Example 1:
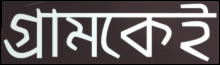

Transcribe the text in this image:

গ্রামকেই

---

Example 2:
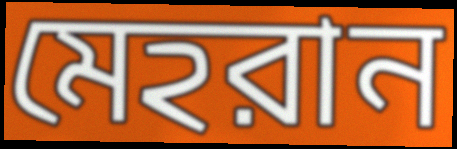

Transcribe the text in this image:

মেহরান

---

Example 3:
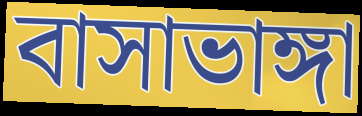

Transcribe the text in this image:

বাসাভাঙ্গা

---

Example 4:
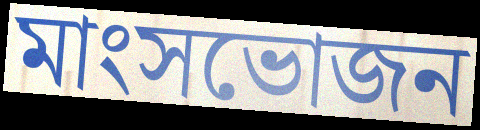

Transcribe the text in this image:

মাংসভোজন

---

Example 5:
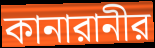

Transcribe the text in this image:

কানারানীর